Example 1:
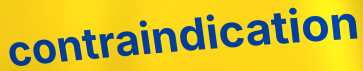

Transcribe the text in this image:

contraindication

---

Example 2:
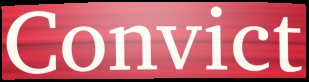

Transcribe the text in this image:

Convict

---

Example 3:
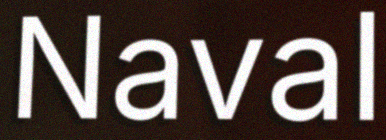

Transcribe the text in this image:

Naval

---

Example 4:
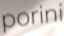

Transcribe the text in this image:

porini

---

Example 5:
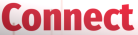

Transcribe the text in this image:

Connect